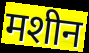
मशीन